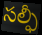
సల్ఫీ